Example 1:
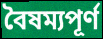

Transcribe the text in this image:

বৈষম্যপূৰ্ণ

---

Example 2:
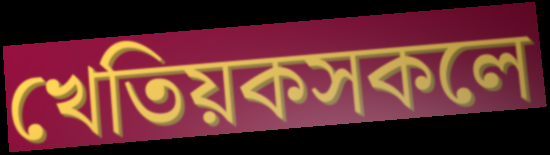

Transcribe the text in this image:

খেতিয়কসকলে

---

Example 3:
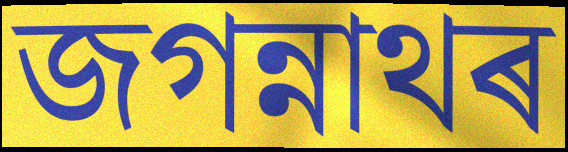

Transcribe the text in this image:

জগন্নাথৰ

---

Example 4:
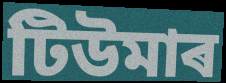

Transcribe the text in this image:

টিউমাৰ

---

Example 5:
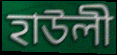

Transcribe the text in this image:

হাউলী